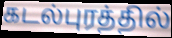
கடல்புரத்தில்